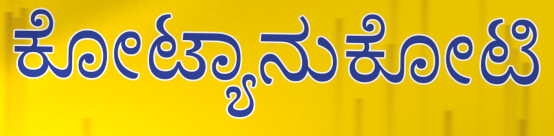
ಕೋಟ್ಯಾನುಕೋಟಿ